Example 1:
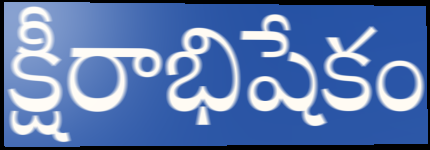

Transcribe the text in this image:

క్షీరాభిషేకం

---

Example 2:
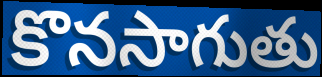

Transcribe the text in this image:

కొనసాగుతు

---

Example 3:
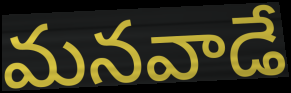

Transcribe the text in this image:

మనవాడే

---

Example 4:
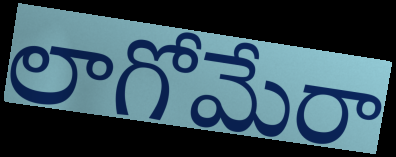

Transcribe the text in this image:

లాగోమేరా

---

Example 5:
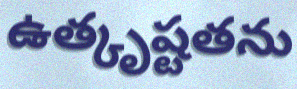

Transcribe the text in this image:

ఉత్కృష్టతను